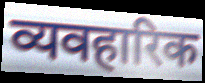
व्यवहारिक